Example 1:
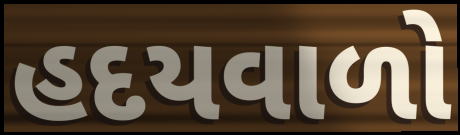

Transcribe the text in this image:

હદયવાળો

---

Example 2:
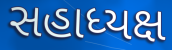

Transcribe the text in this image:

સહાધ્યક્ષ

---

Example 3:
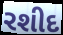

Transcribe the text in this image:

રશીદ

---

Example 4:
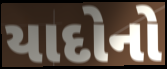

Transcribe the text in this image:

યાદોનો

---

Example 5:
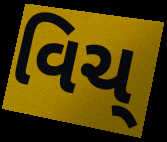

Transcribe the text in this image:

વિચ્